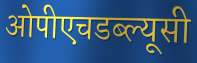
ओपीएचडब्ल्यूसी